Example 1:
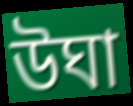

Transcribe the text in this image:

উঘা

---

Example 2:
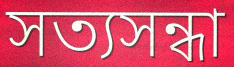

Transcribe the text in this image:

সত্যসন্ধা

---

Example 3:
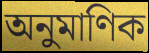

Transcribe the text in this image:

অনুমাণিক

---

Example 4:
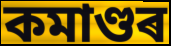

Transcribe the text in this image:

কমাণ্ডৰ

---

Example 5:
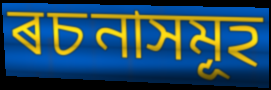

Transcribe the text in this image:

ৰচনাসমূহ